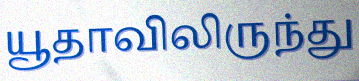
யூதாவிலிருந்து